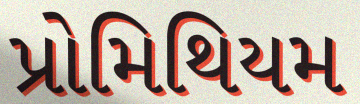
પ્રોમિથિયમ